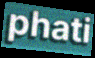
phati